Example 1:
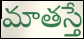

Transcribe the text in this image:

మాతస్తే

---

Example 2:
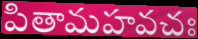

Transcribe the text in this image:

పితామహవచః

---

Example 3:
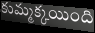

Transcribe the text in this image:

కుమ్మక్కయింది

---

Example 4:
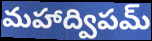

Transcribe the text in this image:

మహాద్విపమ్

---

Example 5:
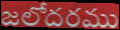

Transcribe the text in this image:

జలోదరము